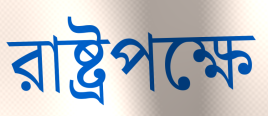
রাষ্ট্রপক্ষে